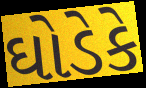
ઘોડેકે